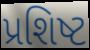
પ્રશિષ્ટ